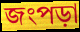
জংপড়া